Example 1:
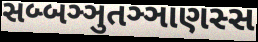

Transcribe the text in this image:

સબ્બઞ્ઞુતઞ્ઞાણસ્સ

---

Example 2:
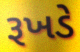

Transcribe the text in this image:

રૂખડે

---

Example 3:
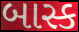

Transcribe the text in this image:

બાસ્ક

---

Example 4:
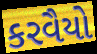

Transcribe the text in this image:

કરવૈયો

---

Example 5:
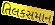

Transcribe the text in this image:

તિલકસમાન